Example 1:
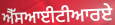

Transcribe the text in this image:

ਐੱਸਆਈਟੀਆਰਏ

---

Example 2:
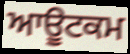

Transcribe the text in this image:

ਆਊਟਕਮ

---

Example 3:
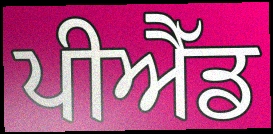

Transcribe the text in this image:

ਪੀਐੱਡ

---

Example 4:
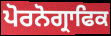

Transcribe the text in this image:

ਪੋਰਨੋਗ੍ਰਾਫਿਕ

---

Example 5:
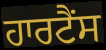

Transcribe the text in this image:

ਹਾਰਟੈਂਸ